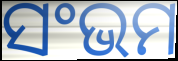
ସଂଭମ